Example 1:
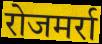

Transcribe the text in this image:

रोजमर्रा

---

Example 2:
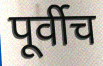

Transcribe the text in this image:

पूर्वीच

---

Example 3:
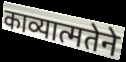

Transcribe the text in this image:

काव्यात्मतेने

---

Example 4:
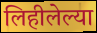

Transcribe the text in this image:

लिहीलेल्या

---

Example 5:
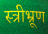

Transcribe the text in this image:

स्त्रीभ्रूण